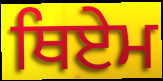
ਥਿਏਮ